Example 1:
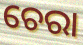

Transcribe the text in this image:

ଚେରା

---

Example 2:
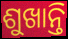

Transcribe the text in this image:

ଶୁଖାନ୍ତି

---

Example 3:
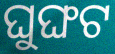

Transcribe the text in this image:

ଘୁଙ୍ଘଟ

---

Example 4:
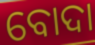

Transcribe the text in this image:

ବୋଦା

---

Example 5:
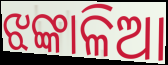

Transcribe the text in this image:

ଝଙ୍କାଳିଆ